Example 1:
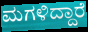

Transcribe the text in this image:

ಮಗಳಿದ್ದಾರೆ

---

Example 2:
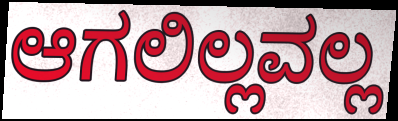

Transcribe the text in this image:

ಆಗಲಿಲ್ಲವಲ್ಲ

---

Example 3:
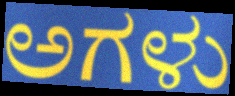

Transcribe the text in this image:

ಅಗಳು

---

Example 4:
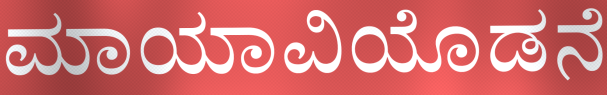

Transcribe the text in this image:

ಮಾಯಾವಿಯೊಡನೆ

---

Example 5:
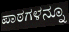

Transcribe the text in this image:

ಪಾಠಗಳನ್ನೂ